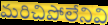
మరిచిపోలేనివి